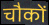
चौकों